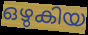
ഒഴുകിയ